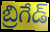
బ్రిగేడ్